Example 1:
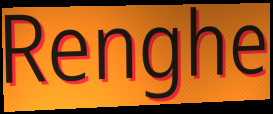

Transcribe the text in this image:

Renghe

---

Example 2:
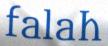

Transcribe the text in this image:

falah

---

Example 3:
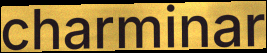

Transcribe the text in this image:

charminar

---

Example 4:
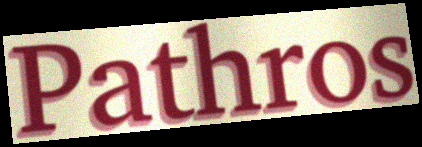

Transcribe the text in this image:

Pathros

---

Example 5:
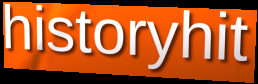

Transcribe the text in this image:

historyhit